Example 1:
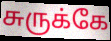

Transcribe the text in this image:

சுருக்கே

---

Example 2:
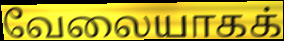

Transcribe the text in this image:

வேலையாகக்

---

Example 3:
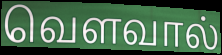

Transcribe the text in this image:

வெளவால்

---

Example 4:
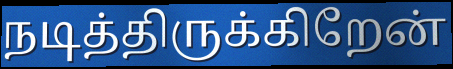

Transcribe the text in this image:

நடித்திருக்கிறேன்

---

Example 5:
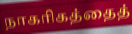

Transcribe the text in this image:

நாகரிகத்தைத்